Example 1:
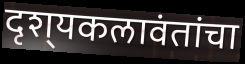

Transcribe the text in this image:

दृश्यकलावंतांचा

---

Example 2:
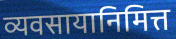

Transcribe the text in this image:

व्यवसायानिमित्त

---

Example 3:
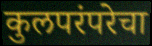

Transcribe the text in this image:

कुलपरंपरेचा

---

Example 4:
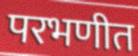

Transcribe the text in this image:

परभणीत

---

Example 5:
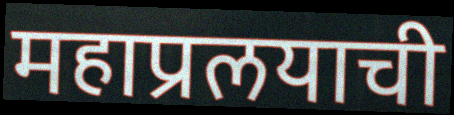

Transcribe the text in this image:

महाप्रलयाची